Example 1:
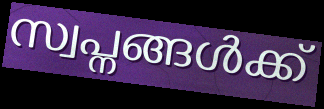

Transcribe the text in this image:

സ്വപ്നങ്ങൾക്ക്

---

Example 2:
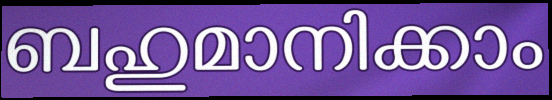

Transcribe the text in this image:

ബഹുമാനിക്കാം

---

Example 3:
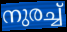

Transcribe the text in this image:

നുരച്ച്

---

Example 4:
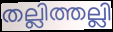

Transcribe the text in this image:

തല്ലിത്തല്ലി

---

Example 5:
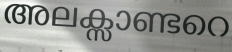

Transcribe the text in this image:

അലക്സാണ്ടറെ